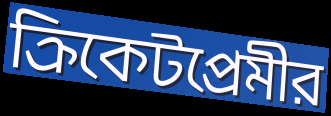
ক্রিকেটপ্রেমীর